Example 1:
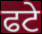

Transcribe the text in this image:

ਫਟੇ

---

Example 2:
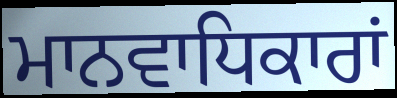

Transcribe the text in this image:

ਮਾਨਵਾਧਿਕਾਰਾਂ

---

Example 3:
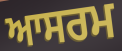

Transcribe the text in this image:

ਆਸਰਮ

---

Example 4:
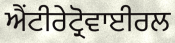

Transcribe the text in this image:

ਐਂਟੀਰੇਟ੍ਰੋਵਾਈਰਲ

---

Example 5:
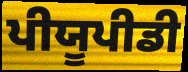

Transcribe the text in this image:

ਪੀਯੂਪੀਡੀ